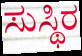
ಸುಸ್ಥಿರ